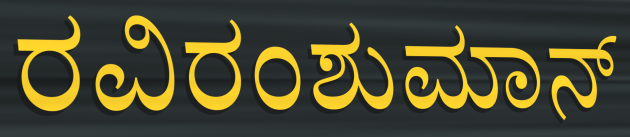
ರವಿರಂಶುಮಾನ್